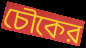
চৌকের